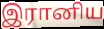
இரானிய